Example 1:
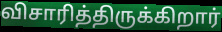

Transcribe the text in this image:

விசாரித்திருக்கிறார்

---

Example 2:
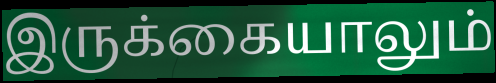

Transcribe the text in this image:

இருக்கையாலும்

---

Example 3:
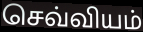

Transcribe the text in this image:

செவ்வியம்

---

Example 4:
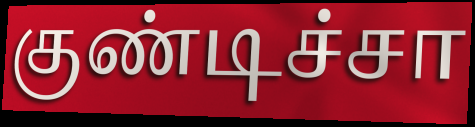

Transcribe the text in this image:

குண்டிச்சா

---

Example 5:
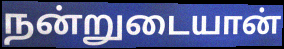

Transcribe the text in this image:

நன்றுடையான்